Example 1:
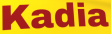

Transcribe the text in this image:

Kadia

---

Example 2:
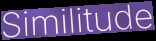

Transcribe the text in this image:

Similitude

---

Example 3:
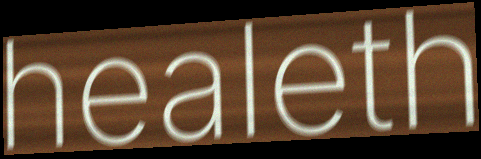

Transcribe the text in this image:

healeth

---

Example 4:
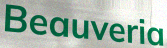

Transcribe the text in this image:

Beauveria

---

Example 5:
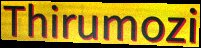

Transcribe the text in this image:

Thirumozi